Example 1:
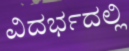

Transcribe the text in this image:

ವಿದರ್ಭದಲ್ಲಿ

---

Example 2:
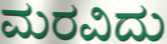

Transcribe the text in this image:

ಮರವಿದು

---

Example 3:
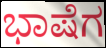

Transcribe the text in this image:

ಭಾಷೆಗ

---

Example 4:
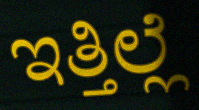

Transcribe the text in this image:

ಇತ್ತಿಲ್ಲೆ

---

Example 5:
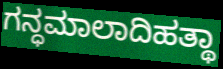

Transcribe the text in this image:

ಗನ್ಧಮಾಲಾದಿಹತ್ಥಾ